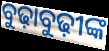
ବୁଢ଼ାବୁଢ଼ୀଙ୍କ